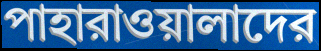
পাহারাওয়ালাদের